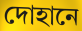
দোহানে